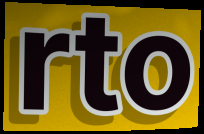
rto